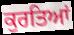
ਕੁਰਤਿਆਂ